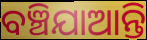
ବଞ୍ଚିଯାଆନ୍ତି